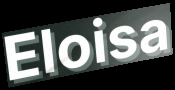
Eloisa